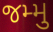
જમ્મુ